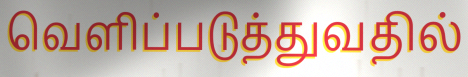
வெளிப்படுத்துவதில்